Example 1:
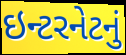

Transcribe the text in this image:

ઇન્ટરનેટનું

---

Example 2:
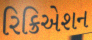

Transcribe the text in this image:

રિક્રિએશન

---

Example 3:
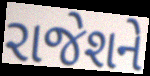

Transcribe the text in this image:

રાજેશને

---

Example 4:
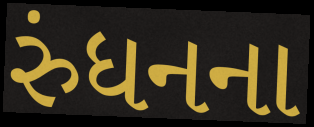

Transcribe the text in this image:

રુંધનના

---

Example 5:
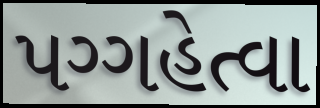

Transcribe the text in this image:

પગ્ગહેત્વા